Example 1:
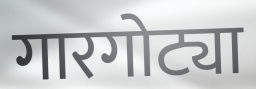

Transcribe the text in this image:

गारगोट्या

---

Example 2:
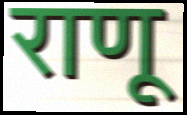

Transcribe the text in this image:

राणू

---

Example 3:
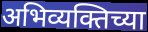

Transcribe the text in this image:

अभिव्यक्तिच्या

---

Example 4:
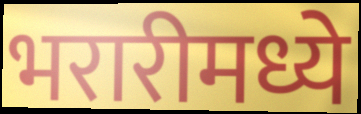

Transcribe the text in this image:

भरारीमध्ये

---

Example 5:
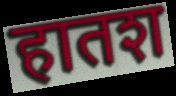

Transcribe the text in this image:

हातश